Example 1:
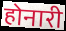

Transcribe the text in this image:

होनारी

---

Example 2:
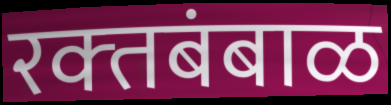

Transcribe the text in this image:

रक्‍तबंबाळ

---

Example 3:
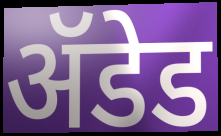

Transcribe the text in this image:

ॲडेड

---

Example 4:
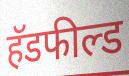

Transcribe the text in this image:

हॅडफील्ड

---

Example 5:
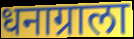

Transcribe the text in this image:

धनाग्राला